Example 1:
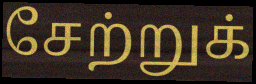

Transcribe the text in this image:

சேற்றுக்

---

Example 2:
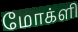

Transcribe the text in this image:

மோக்ளி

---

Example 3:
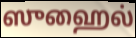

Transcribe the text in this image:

ஸுஹைல்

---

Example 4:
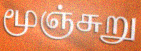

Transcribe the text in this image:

மூஞ்சுறு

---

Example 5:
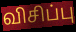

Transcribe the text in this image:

விசிப்பு